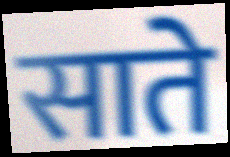
साते